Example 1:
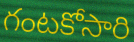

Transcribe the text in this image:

గంటకోసారి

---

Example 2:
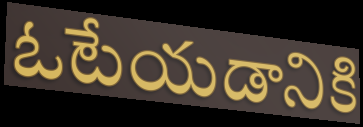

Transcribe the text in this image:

ఓటేయడానికి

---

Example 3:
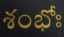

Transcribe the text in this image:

శంభోః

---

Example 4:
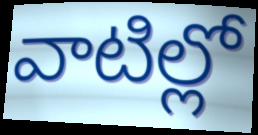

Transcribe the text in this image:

వాటిల్లో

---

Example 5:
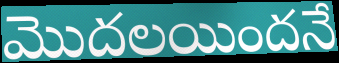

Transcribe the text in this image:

మొదలయిందనే